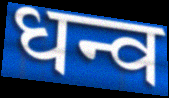
धन्व